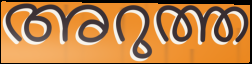
അറുത്ത